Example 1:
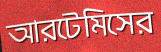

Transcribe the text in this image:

আরটেমিসের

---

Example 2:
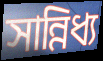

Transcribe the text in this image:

সান্নিধ্য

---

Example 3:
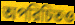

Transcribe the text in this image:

অপরিচিতও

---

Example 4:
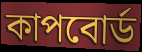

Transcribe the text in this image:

কাপবোর্ড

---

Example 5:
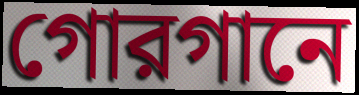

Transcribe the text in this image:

গোরগানে